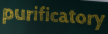
purificatory